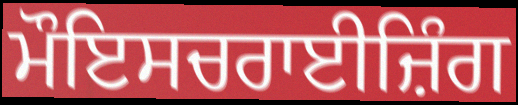
ਮੌਇਸਚਰਾਈਜ਼ਿੰਗ